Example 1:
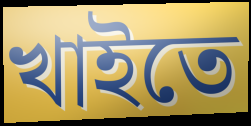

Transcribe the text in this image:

খাইতে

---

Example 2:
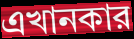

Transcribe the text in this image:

এখানকার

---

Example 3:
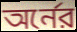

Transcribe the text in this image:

অর্নের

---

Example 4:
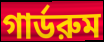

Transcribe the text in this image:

গার্ডরুম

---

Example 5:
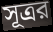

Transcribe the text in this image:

সূত্রর